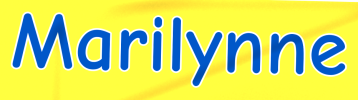
Marilynne